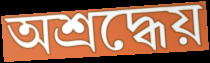
অশ্রদ্ধেয়